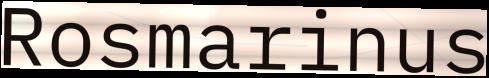
Rosmarinus